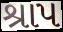
શ્રાપ